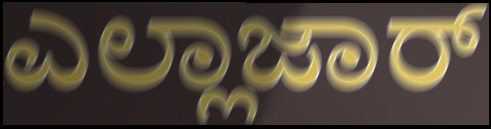
ಎಲ್ಲಾಜಾರ್